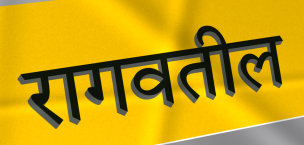
रागवतील